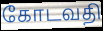
கோடவதி